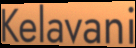
Kelavani